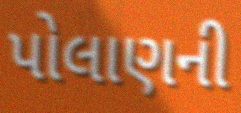
પોલાણની